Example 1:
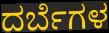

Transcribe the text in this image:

ದರ್ಬೆಗಳ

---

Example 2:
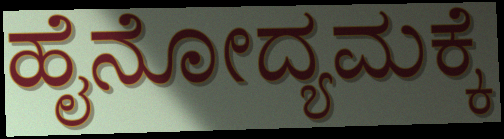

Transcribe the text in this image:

ಹೈನೋದ್ಯಮಕ್ಕೆ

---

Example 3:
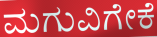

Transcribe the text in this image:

ಮಗುವಿಗೇಕೆ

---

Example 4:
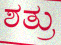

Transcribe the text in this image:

ಶತ್ರು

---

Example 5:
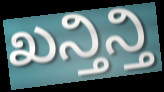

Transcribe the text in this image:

ಖನ್ತಿನ್ತಿ